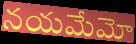
నయమేమో